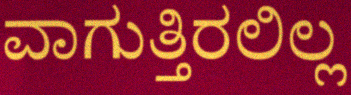
ವಾಗುತ್ತಿರಲಿಲ್ಲ